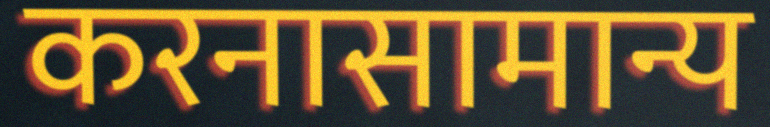
करनासामान्य